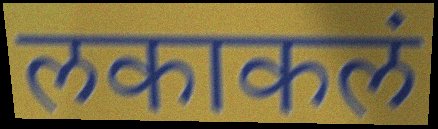
लकाकलं